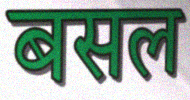
बसल